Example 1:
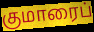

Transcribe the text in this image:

குமாரைப்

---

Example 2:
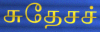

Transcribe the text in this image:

சுதேசச்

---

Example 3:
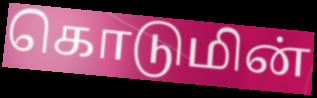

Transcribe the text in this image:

கொடுமின்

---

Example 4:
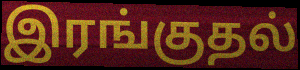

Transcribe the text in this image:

இரங்குதல்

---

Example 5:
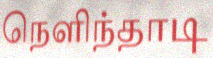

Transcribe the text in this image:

நெளிந்தாடி